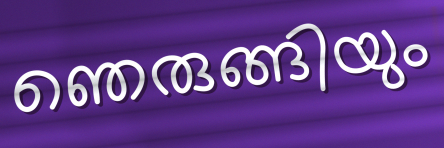
ഞെരുങ്ങിയും